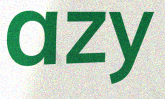
azy